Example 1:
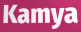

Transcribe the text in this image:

Kamya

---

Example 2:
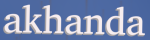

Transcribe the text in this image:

akhanda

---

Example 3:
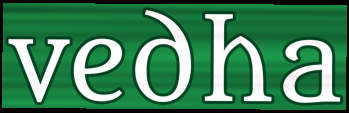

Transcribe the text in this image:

vedha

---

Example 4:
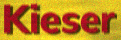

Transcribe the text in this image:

Kieser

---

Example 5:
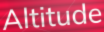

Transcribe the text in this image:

Altitude